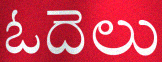
ఓదెలు